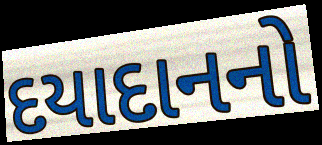
દયાદાનનો